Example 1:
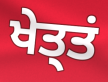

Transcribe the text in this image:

ਖੇਤ੍ਤਂ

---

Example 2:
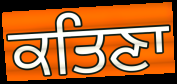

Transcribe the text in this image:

ਕਤਿਣਾ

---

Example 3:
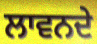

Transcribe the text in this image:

ਲਾਵਨਦੇ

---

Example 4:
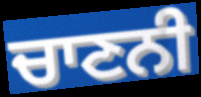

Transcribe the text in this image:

ਚਾਣਨੀ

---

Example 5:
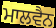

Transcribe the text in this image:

ਮਾਲਵੈਨ